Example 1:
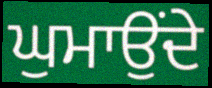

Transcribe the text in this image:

ਘੁਮਾਉਂਦੇ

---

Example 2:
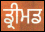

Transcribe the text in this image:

ਡ੍ਰੀਮਡ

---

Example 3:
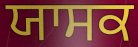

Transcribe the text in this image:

ਯਾਸਕ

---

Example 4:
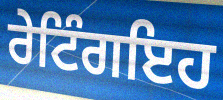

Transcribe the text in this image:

ਰੇਟਿੰਗਇਹ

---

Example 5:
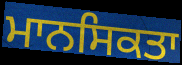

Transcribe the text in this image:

ਮਾਨਸਿਕਤਾ